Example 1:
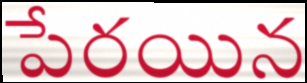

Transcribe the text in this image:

పేరయిన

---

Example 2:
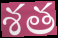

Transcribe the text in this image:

శత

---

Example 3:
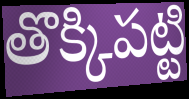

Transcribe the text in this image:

తొక్కిపట్టి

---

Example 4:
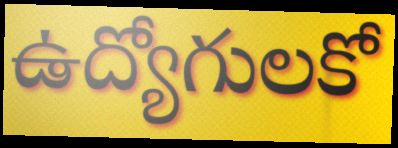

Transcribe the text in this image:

ఉద్యోగులకో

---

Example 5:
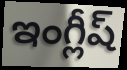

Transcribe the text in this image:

ఇంగ్లీష్